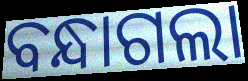
ବନ୍ଧାଗଲା